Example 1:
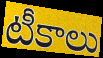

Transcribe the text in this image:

టీకాలు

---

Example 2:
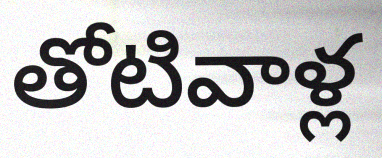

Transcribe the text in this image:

తోటివాళ్ల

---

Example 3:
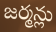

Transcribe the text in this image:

జర్మన్లు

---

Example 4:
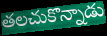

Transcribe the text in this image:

తలచుకొన్నాడు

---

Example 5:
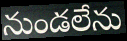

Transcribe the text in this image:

నుండలేను